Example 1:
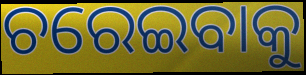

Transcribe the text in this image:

ଚରେଇବାକୁ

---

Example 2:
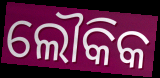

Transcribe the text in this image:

ଲୌକିକ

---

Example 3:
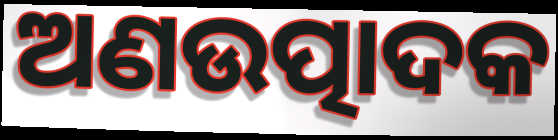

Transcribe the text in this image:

ଅଣଉତ୍ପାଦକ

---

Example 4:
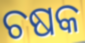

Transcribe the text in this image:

ଚଷକ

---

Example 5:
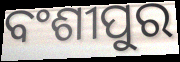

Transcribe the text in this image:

ବଂଶୀପୁର